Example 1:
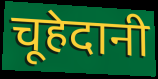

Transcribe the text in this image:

चूहेदानी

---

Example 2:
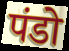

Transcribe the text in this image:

पंडो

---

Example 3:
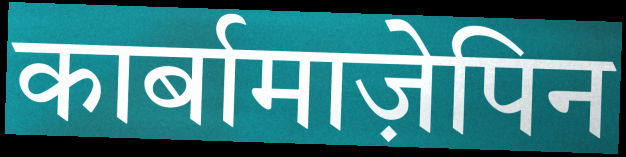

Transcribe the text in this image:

कार्बामाज़ेपिन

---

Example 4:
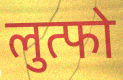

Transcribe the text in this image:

लुत्फो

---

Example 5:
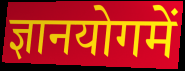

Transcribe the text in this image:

ज्ञानयोगमें